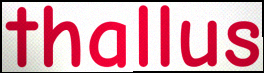
thallus